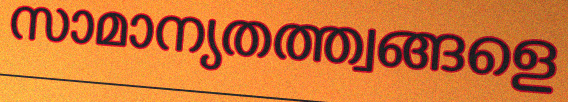
സാമാന്യതത്ത്വങ്ങളെ